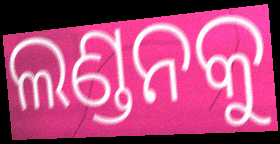
ଲଣ୍ଡନକୁ